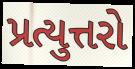
પ્રત્યુત્તરો